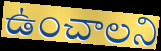
ఉంచాలని